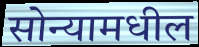
सोन्यामधील